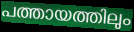
പത്തായത്തിലും